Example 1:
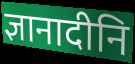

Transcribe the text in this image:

ज्ञानादीनि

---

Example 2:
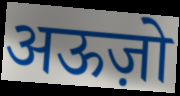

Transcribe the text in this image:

अऊज़ो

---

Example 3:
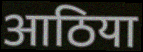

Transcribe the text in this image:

आठिया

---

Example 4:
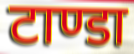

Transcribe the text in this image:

टाण्डा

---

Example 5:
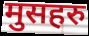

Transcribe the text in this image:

मुसहरु